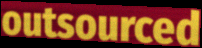
outsourced